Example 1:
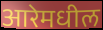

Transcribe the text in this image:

आरेमधील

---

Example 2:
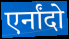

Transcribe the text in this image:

एर्नांदो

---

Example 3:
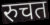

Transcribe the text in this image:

रुचत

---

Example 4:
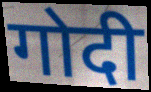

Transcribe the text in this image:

गोदी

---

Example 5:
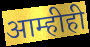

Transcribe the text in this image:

आम्हीही